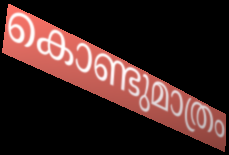
കൊണ്ടുമാത്രം